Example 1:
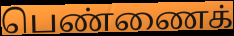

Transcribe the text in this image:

பெண்ணைக்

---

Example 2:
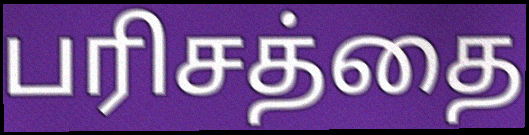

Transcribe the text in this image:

பரிசத்தை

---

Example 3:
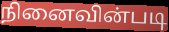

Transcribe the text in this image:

நினைவின்படி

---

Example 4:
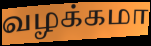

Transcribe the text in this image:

வழக்கமா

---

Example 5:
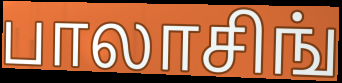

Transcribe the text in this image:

பாலாசிங்